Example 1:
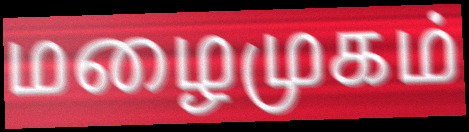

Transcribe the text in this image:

மழைமுகம்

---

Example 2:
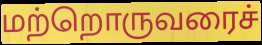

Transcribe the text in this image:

மற்றொருவரைச்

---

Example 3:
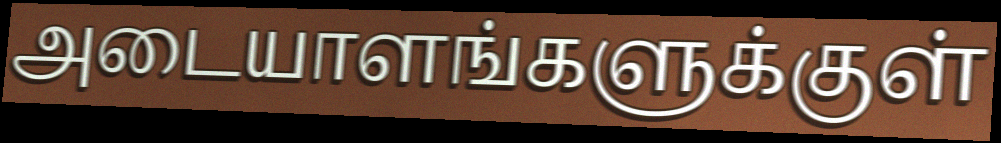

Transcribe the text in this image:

அடையாளங்களுக்குள்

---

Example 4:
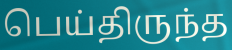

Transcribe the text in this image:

பெய்திருந்த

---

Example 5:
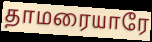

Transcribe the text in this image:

தாமரையாரே